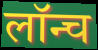
लॉन्च